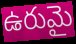
ఉరుమై